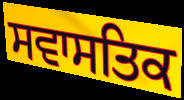
ਸਵਾਸਤਿਕ